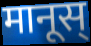
मानूस्